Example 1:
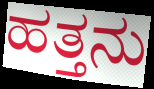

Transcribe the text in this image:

ಹತ್ತನು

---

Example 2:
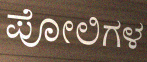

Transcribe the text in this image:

ಪೋಲಿಗಳ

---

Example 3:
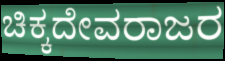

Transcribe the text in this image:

ಚಿಕ್ಕದೇವರಾಜರ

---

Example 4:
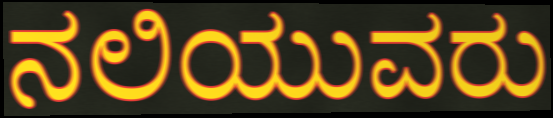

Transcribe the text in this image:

ನಲಿಯುವರು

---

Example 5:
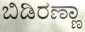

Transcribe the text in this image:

ಬಿಡಿರಣ್ಣಾ